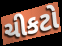
ચીકટો